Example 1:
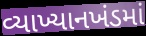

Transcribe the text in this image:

વ્યાખ્યાનખંડમાં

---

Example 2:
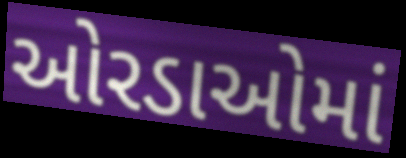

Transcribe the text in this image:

ઓરડાઓમાં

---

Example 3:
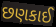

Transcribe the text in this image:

છણકાઈ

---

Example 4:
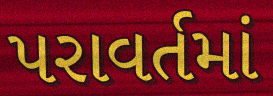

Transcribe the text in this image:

પરાવર્તમાં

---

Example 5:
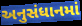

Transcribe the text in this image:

અનુસંધાનમાં